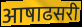
आषाढसरी